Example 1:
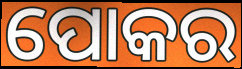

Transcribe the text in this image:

ପୋକର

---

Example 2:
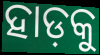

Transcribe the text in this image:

ହାଡ଼କୁ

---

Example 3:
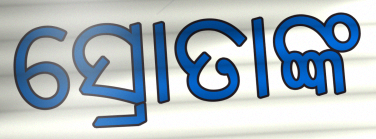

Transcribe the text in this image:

ସ୍ରୋତାଙ୍କ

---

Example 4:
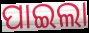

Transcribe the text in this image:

ପାଇଲା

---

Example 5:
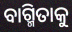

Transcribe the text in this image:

ବାଗ୍ମିତାକୁ